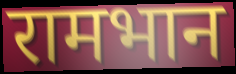
रामभान